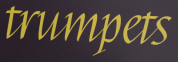
trumpets